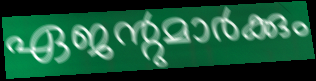
ഏജന്റുമാർക്കും